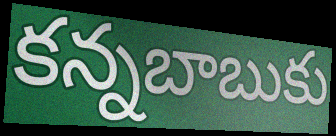
కన్నబాబుకు